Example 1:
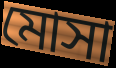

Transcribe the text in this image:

মোসা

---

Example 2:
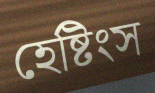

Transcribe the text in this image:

হেষ্টিংস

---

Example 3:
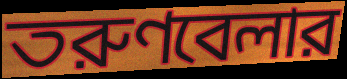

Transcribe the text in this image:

তরুণবেলার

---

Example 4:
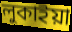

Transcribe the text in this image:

লুকাইয়া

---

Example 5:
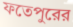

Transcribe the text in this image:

ফতেপুরের